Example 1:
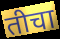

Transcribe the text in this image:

तीचा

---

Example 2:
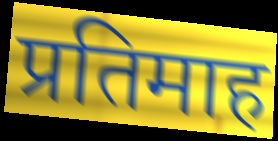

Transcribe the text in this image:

प्रतिमाह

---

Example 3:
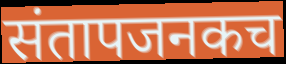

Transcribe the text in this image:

संतापजनकच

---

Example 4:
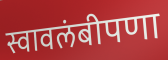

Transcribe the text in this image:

स्वावलंबीपणा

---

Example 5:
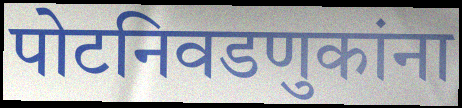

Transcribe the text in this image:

पोटनिवडणुकांना